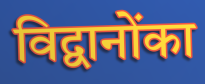
विद्वानोंका